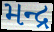
મન્દ્ર